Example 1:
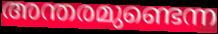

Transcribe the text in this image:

അന്തരമുണ്ടെന്ന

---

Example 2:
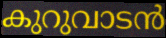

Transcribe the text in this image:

കുറുവാടൻ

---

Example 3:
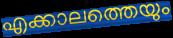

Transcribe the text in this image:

എക്കാലത്തെയും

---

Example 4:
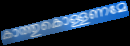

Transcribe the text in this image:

കാത്തുകൊള്ളണമേ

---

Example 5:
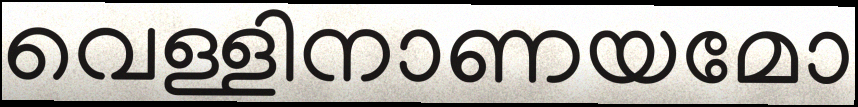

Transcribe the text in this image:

വെള്ളിനാണയമോ